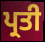
ਪ੍ਰਤੀ